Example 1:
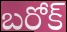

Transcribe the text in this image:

బరోక్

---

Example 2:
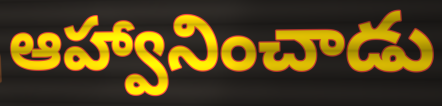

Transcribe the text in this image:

ఆహ్వానించాడు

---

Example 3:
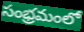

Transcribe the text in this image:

సంభ్రమంలో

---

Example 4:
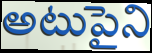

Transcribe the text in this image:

అటుపైని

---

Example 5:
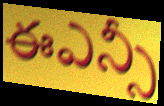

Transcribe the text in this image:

ఈఎన్సీ